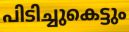
പിടിച്ചുകെട്ടും